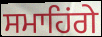
ਸਮਾਹਿਂਗੇ